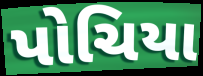
પોચિયા